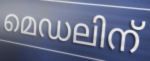
മെഡലിന്